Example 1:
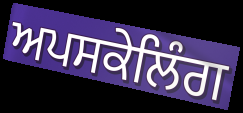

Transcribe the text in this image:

ਅਪਸਕੇਲਿੰਗ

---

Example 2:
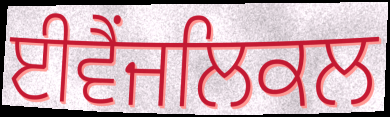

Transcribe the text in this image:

ਈਵੈਂਜਲਿਕਲ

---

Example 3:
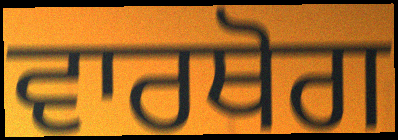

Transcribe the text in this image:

ਵਾਰਥੋਗ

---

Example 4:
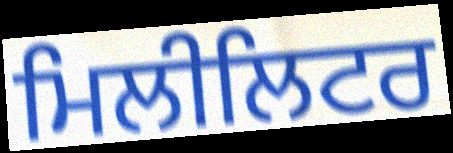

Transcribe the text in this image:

ਮਿਲੀਲਿਟਰ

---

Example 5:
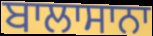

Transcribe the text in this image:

ਬਾਲਾਸਾਨਾ